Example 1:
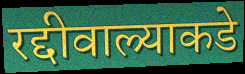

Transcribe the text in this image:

रद्दीवाल्याकडे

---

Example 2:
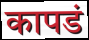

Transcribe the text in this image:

कापडं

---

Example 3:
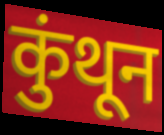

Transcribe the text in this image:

कुंथून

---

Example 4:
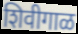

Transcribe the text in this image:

शिवीगाळ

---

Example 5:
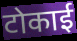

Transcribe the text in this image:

टोकाई